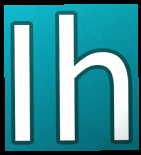
Ih